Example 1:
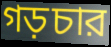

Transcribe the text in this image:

গড়চার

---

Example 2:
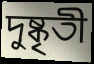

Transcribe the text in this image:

দুষ্কৃতী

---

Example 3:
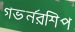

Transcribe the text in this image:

গভর্নরশিপ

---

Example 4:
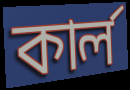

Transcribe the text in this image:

কার্ল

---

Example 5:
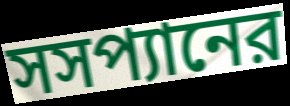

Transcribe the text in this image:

সসপ্যানের